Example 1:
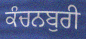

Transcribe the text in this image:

ਕੰਚਨਬੁਰੀ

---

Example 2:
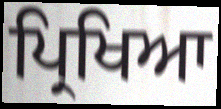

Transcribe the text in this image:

ਪ੍ਰਿਖਿਆ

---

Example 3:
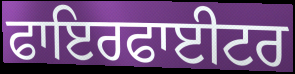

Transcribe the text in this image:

ਫਾਇਰਫਾਈਟਰ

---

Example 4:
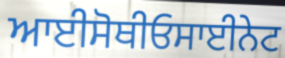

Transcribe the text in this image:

ਆਈਸੋਥੀਓਸਾਈਨੇਟ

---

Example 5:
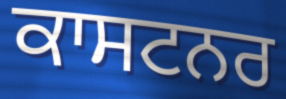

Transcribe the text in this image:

ਕਾਸਟਨਰ